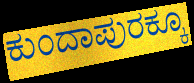
ಕುಂದಾಪುರಕ್ಕೂ